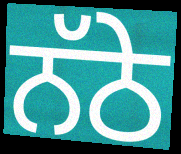
ਨੱਠੇ